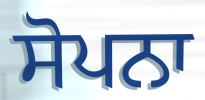
ਸੋਪਨਾ